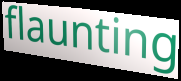
flaunting